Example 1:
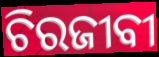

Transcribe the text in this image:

ଚିରଜୀବୀ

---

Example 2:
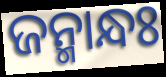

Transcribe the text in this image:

ଜନ୍ମାନ୍ଧଃ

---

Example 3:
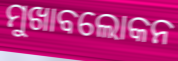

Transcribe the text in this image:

ମୁଖାବଲୋକନ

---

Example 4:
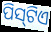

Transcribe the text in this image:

ପିସ୍‌ଟିଏ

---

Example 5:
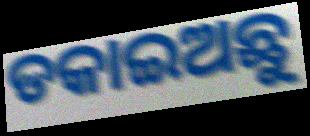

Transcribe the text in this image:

ଡକାଇଅଛୁ